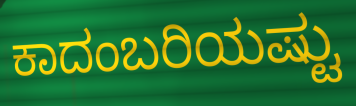
ಕಾದಂಬರಿಯಷ್ಟು